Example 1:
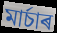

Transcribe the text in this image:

মাৰ্চাৰ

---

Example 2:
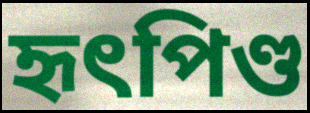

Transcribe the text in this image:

হৃৎপিণ্ড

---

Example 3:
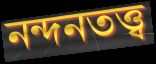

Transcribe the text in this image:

নন্দনতত্ত্ব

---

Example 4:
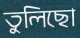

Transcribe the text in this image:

তুলিছো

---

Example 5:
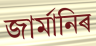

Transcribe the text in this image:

জাৰ্মানিৰ